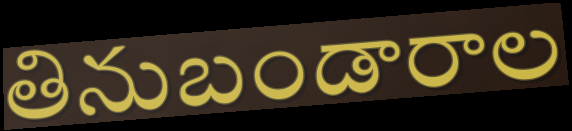
తినుబండారాల